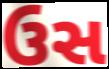
ઉસ